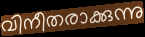
വിനീതരാക്കുന്നു